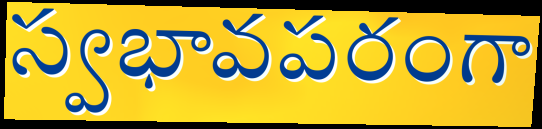
స్వభావపరంగా